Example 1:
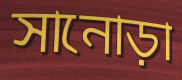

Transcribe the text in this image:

সানোড়া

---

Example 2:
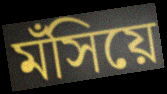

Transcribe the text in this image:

মঁসিয়ে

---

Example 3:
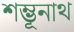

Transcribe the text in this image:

শম্ভূনাথ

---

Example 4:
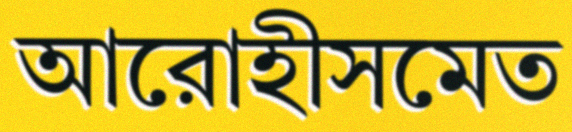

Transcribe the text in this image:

আরোহীসমেত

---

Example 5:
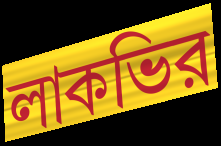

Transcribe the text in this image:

লাকভির